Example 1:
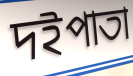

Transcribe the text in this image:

দইপাতা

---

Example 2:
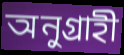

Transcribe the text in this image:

অনুগ্রাহী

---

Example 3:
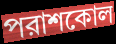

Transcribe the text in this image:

পরাশকোল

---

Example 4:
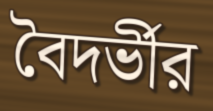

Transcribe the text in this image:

বৈদর্ভীর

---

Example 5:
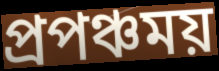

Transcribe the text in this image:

প্রপঞ্চময়